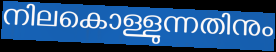
നിലകൊള്ളുന്നതിനും